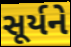
સૂર્યને